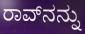
ರಾವ್‌ನನ್ನು